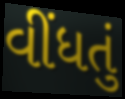
વીંધતું